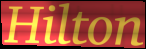
Hilton